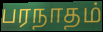
பரநாதம்